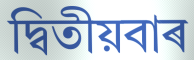
দ্বিতীয়বাৰ